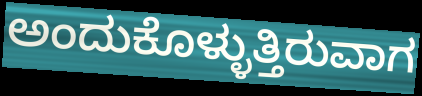
ಅಂದುಕೊಳ್ಳುತ್ತಿರುವಾಗ